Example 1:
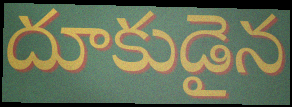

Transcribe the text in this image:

దూకుడైన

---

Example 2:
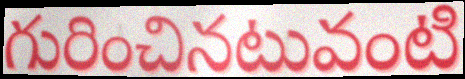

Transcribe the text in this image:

గురించినటువంటి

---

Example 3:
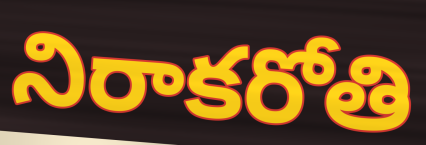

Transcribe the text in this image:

నిరాకరోతి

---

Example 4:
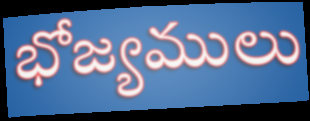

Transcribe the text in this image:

భోజ్యములు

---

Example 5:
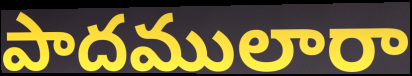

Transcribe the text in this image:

పాదములారా